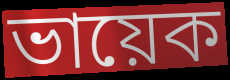
ভায়েক